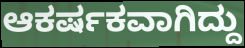
ಆಕರ್ಷಕವಾಗಿದ್ದು